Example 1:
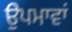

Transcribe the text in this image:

ਉਪਮਾਵਾਂ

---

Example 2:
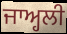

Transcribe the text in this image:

ਜਾਅ੍ਹਲੀ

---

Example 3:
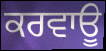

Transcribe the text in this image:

ਕਰਵਾਊ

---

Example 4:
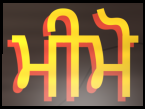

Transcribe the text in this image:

ਮੀਮੋ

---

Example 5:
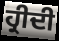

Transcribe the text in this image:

ਹ੍ਰੀਦੀ